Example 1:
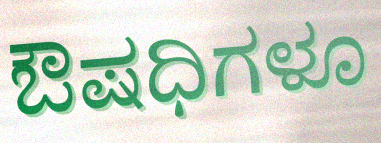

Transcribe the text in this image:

ಔಷಧಿಗಳೂ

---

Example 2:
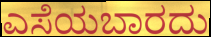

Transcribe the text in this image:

ಎಸೆಯಬಾರದು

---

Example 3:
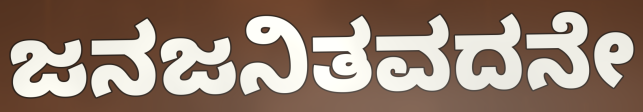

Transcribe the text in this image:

ಜನಜನಿತವದನೇ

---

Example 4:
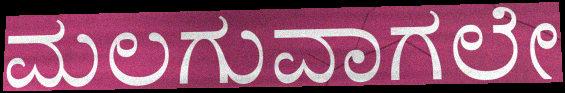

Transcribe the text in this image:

ಮಲಗುವಾಗಲೇ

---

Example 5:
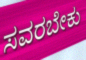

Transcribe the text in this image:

ಸವರಬೇಕು